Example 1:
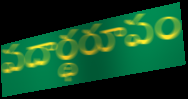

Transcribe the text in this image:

పదార్థరూపం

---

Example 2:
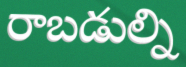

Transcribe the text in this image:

రాబడుల్ని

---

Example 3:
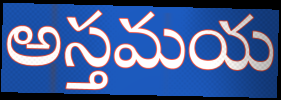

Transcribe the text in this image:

అస్తమయ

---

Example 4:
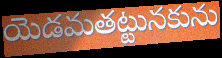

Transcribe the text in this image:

యెడమతట్టునకును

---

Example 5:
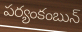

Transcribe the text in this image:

పర్యంకంబున్